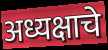
अध्यक्षाचे